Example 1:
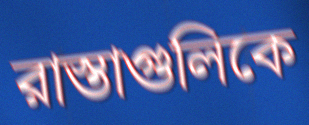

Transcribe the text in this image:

রাস্তাগুলিকে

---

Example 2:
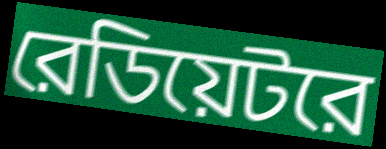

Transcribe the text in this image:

রেডিয়েটরে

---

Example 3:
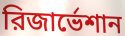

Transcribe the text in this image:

রিজার্ভেশান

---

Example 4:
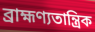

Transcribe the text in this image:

ব্রাহ্মণ্যতান্ত্রিক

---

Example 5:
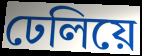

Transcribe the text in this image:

ঢেলিয়ে